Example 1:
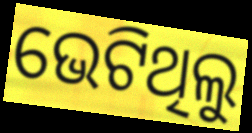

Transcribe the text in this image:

ଭେଟିଥିଲୁ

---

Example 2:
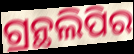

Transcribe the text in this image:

ଗ୍ରନ୍ଥଲିପିର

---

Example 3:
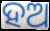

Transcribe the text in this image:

ହଅ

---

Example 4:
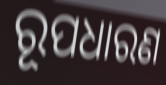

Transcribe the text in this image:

ରୂପଧାରଣ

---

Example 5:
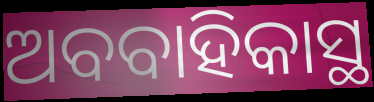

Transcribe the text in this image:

ଅବବାହିକାସ୍ଥ